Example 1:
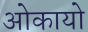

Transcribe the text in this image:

ओकायो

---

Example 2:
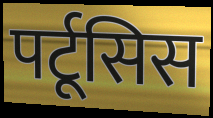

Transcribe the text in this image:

पर्टूसिस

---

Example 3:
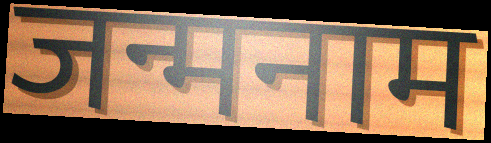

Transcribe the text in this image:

जन्मनाम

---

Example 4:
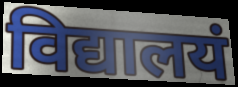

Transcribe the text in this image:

विद्यालयं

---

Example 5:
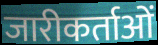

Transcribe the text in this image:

जारीकर्ताओं